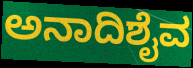
ಅನಾದಿಶೈವ